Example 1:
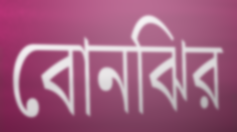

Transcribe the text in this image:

বোনঝির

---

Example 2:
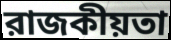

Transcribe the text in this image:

রাজকীয়তা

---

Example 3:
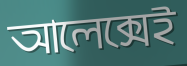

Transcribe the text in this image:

আলেক্সেই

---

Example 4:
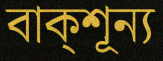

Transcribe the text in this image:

বাক্শূন্য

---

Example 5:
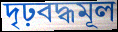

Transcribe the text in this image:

দৃঢ়বদ্ধমূল